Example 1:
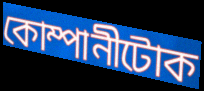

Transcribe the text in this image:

কোম্পানীটোক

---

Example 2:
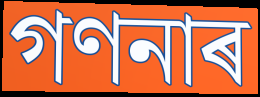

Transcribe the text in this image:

গণনাৰ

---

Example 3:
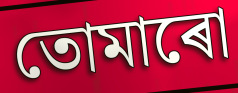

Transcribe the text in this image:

তোমাৰো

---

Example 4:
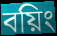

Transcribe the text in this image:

বয়িং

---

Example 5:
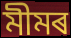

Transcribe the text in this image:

মীমৰ